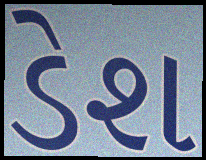
ડેશ